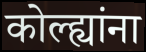
कोल्ह्यांना